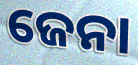
ଜେନା